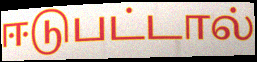
ஈடுபட்டால்